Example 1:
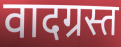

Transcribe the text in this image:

वादग्रस्त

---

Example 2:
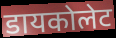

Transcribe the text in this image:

डायकोलेट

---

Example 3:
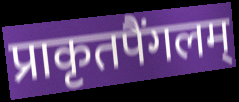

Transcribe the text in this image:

प्राकृतपैंगलम्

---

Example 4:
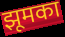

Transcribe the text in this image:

झूमका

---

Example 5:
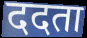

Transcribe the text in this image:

ददता